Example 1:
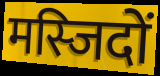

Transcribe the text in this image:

मस्‍जिदों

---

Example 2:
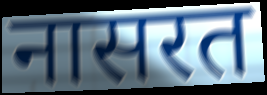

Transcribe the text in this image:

नासरत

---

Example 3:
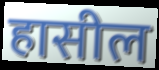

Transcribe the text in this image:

हासील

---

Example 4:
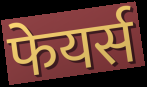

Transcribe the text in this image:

फेयर्स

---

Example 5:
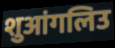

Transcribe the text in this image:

शुआंगलिउ